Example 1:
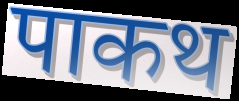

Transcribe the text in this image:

पाकथ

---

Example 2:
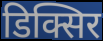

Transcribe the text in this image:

डिक्सिर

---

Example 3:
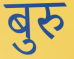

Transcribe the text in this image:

बुरु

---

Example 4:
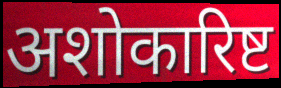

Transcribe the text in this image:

अशोकारिष्ट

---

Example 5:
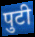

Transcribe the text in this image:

पुटी